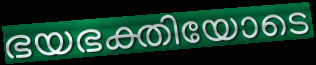
ഭയഭക്തിയോടെ